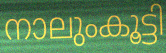
നാലുംകൂട്ടി